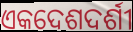
ଏକଦେଶଦର୍ଶୀ